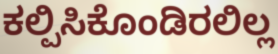
ಕಲ್ಪಿಸಿಕೊಂಡಿರಲಿಲ್ಲ